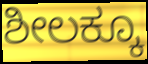
ಶೀಲಕ್ಕೂ